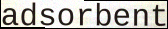
adsorbent